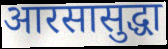
आरसासुद्धा